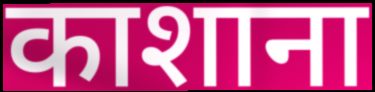
काशाना